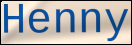
Henny